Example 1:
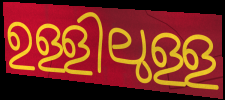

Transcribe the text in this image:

ഉള്ളിലുള്ള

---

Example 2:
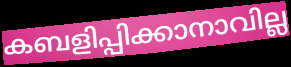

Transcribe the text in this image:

കബളിപ്പിക്കാനാവില്ല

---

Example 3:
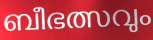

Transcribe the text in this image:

ബീഭത്സവും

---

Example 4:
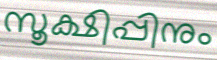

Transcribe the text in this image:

സൂക്ഷിപ്പിനും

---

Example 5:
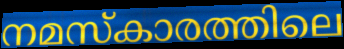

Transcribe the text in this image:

നമസ്കാരത്തിലെ